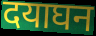
दयाघन